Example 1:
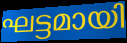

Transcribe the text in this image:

ഘട്ടമായി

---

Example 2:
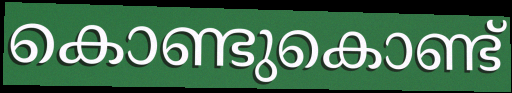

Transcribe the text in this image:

കൊണ്ടുകൊണ്ട്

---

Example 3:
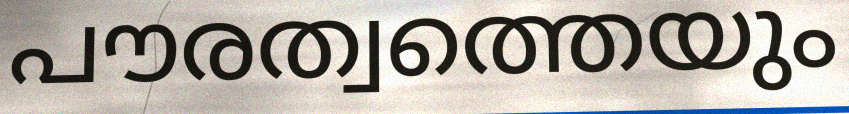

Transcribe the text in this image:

പൗരത്വത്തെയും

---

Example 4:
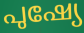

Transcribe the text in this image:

പുഷ്യേ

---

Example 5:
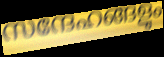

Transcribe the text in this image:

സന്ദേഹങ്ങളും